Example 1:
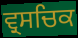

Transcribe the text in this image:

ਵ੍ਰਸਚਿਕ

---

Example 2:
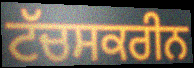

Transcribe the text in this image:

ਟੱਚਸਕਰੀਨ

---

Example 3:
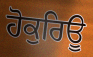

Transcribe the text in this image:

ਹੋਕੁਰਿਊ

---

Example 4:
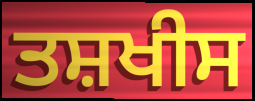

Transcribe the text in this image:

ਤਸ਼ਖੀਸ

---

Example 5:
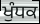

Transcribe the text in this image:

ਖੁੰਧਕ